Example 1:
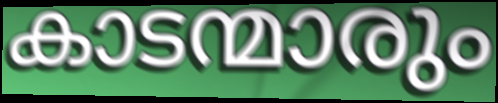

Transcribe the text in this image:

കാടന്മാരും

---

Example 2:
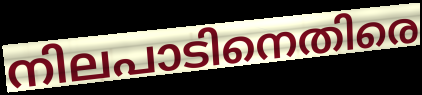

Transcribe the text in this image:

നിലപാടിനെതിരെ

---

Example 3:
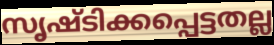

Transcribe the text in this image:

സൃഷ്ടിക്കപ്പെട്ടതല്ല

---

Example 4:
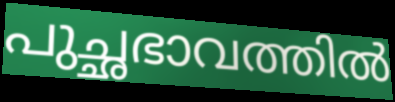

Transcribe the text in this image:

പുച്ഛഭാവത്തിൽ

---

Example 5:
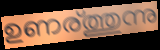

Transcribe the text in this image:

ഉണര്ത്തുന്നു